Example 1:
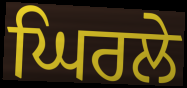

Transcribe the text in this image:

ਘਿਰਲੇ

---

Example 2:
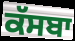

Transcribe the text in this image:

ਕੱਸਬਾ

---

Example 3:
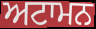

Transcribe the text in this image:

ਅਟਾਮਨ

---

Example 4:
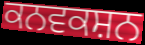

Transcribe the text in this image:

ਕਨਵਕਸ਼ਨ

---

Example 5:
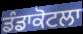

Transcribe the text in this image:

ਡੰਡਾਕੋਟਲਾ